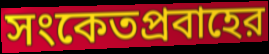
সংকেতপ্রবাহের